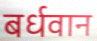
बर्धवान